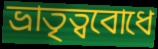
ভ্রাতৃত্ববোধে